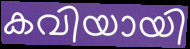
കവിയായി